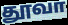
தூவா